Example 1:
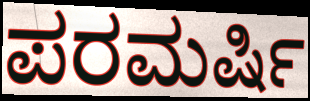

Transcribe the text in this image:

ಪರಮರ್ಷಿ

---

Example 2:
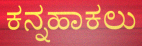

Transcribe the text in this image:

ಕನ್ನಹಾಕಲು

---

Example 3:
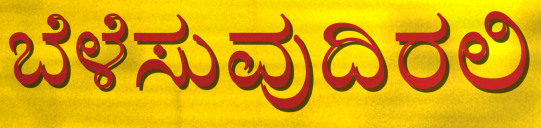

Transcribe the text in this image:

ಬೆಳೆಸುವುದಿರಲಿ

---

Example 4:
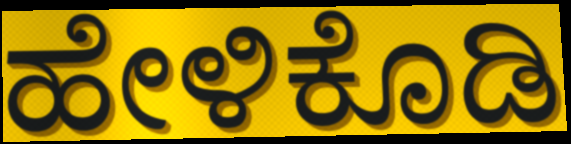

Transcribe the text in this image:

ಹೇಳಿಕೊಡಿ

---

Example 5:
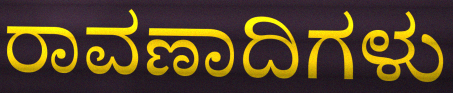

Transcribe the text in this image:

ರಾವಣಾದಿಗಳು